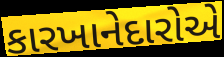
કારખાનેદારોએ